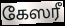
கேஸரீ